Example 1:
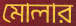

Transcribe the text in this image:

মোলার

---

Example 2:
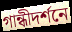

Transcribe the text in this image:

গান্ধীদর্শনে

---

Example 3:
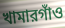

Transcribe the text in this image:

খামারগাঁও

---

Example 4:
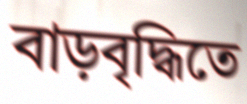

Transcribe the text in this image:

বাড়বৃদ্ধিতে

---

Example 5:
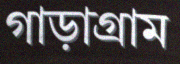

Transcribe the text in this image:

গাড়াগ্রাম